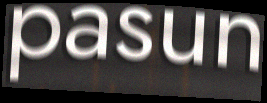
pasun